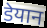
डेयान